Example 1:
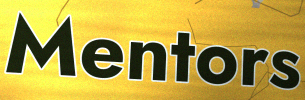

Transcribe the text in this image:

Mentors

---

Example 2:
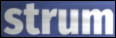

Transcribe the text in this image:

strum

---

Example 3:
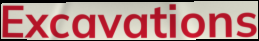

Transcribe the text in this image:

Excavations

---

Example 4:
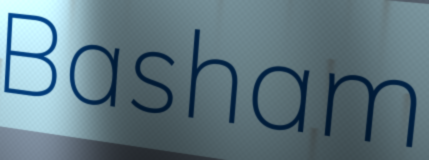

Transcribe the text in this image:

Basham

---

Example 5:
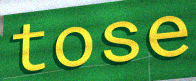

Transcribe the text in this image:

tose